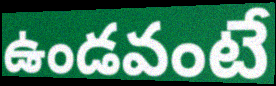
ఉండవంటే